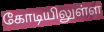
கோடியிலுள்ள